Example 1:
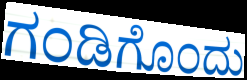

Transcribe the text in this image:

ಗಂಡಿಗೊಂದು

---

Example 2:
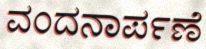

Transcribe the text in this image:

ವಂದನಾರ್ಪಣೆ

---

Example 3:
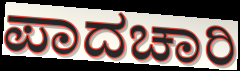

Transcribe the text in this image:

ಪಾದಚಾರಿ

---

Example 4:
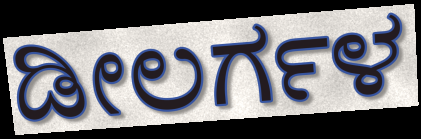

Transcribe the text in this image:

ಡೀಲರ್ಗಳ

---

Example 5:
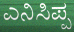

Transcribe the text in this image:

ಎನಿಸಿಪ್ಪ